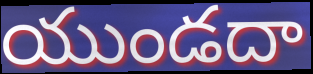
యుండదా